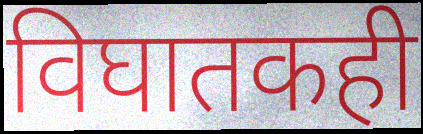
विघातकही